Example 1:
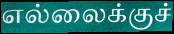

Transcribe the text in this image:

எல்லைக்குச்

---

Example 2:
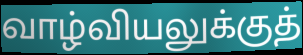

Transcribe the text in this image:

வாழ்வியலுக்குத்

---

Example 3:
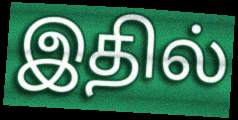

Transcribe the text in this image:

இதில்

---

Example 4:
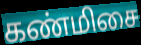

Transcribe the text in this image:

கண்மிசை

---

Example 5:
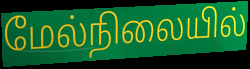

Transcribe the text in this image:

மேல்நிலையில்